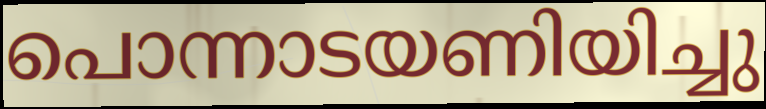
പൊന്നാടയണിയിച്ചു